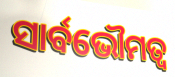
ସାର୍ବଭୌମତ୍ବ